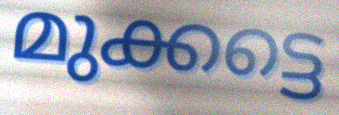
മുക്കട്ടെ